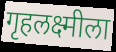
गृहलक्ष्मीला